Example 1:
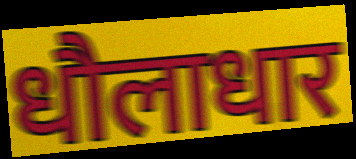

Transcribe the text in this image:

धौलाधार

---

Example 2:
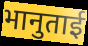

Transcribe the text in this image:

भानुताई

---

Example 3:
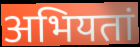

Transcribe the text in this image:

अभियतां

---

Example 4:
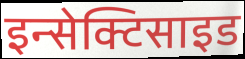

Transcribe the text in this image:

इन्सेक्टिसाइड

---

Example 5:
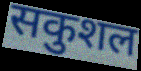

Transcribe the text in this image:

सकुशल